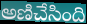
అణిచేసింది